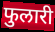
फुलारी